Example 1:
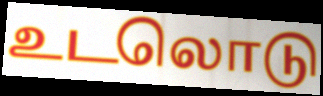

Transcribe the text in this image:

உடலொடு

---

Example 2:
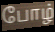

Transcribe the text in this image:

போழ்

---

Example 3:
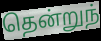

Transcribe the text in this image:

தென்றுந்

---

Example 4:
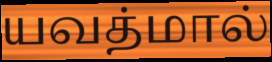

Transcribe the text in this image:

யவத்மால்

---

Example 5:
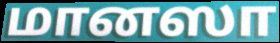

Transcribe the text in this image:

மானஸா